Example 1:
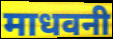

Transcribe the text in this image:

माधवनी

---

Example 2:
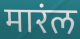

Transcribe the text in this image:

मारंल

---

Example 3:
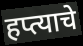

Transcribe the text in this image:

हप्त्याचे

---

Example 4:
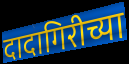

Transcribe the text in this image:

दादागिरीच्या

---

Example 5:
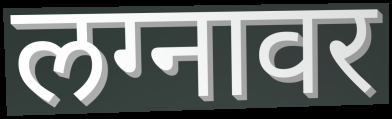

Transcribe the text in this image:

लग्नावर